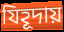
যিহূদায়